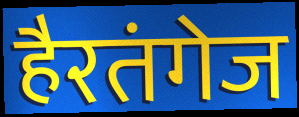
हैरतंगेज